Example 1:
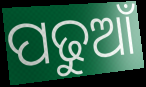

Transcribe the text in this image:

ପଢୁଆଁ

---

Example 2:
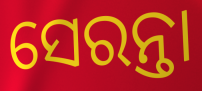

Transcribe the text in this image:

ସେରନ୍ତା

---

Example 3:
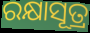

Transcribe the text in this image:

ରକ୍ଷାସୂତ୍ର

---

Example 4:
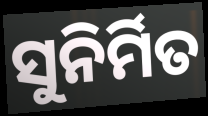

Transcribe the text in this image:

ସୁନିର୍ମିତ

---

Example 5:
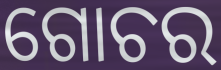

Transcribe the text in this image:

ଗୋଚର